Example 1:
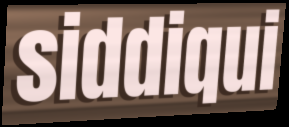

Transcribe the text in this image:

siddiqui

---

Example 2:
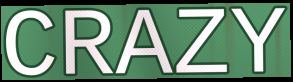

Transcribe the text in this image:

CRAZY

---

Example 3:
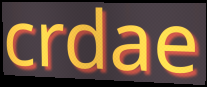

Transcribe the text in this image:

crdae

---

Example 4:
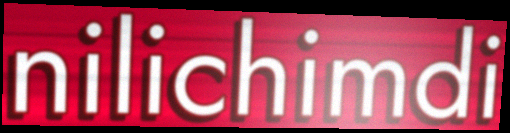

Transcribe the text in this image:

nilichimdi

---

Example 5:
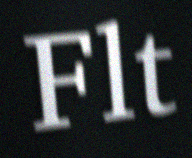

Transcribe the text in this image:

Flt